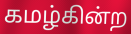
கமழ்கின்ற